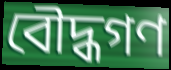
বৌদ্ধগণ